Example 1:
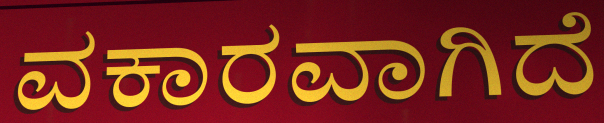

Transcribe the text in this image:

ವಕಾರವಾಗಿದೆ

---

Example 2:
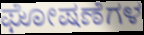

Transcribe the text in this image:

ಘೋಷಣೆಗಳ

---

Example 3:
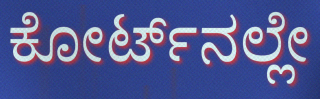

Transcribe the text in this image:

ಕೋರ್ಟ್‌ನಲ್ಲೇ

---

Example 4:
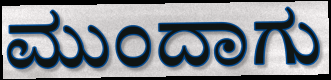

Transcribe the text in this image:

ಮುಂದಾಗು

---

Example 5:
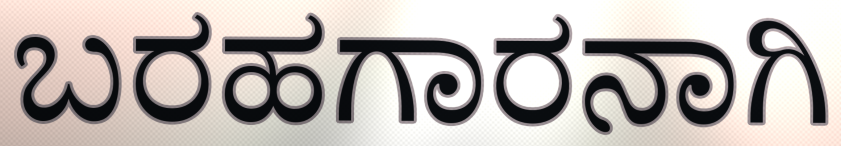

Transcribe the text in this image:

ಬರಹಗಾರನಾಗಿ